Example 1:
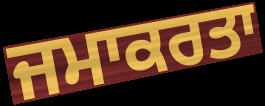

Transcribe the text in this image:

ਜਮਾਕਰਤਾ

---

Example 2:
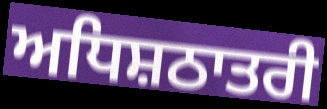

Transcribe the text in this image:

ਅਧਿਸ਼ਠਾਤਰੀ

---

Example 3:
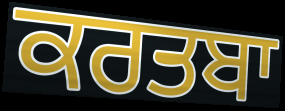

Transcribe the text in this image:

ਕਰਤਬਾ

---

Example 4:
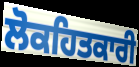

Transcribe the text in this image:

ਲੋਕਹਿਤਕਾਰੀ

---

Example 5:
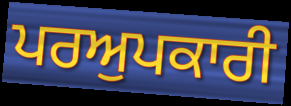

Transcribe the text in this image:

ਪਰਅੁਪਕਾਰੀ